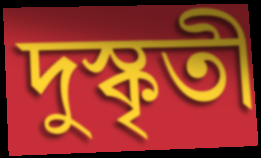
দুস্কৃতী